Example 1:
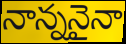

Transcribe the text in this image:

నాన్ననైనా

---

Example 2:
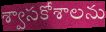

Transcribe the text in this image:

శ్వాసకోశాలను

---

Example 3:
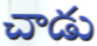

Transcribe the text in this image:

చాడు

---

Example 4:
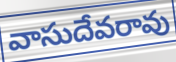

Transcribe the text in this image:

వాసుదేవరావు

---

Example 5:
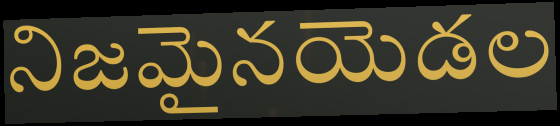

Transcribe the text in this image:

నిజమైనయెడల